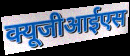
क्यूजीआईएस